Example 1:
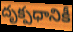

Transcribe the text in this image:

దృక్పధానికీ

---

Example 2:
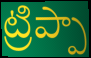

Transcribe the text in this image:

ట్రిప్పా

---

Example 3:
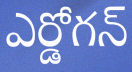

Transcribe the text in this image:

ఎర్డోగన్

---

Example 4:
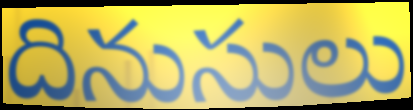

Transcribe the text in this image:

దినుసులు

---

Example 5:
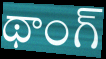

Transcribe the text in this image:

థాంగ్